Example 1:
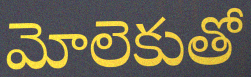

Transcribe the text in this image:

మోలెకుతో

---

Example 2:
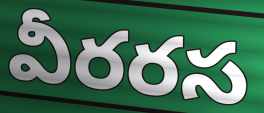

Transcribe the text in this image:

వీరరస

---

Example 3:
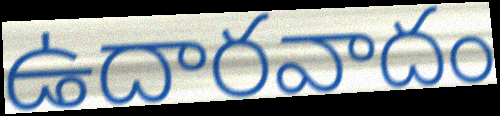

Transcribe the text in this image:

ఉదారవాదం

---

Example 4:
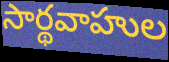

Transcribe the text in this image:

సార్థవాహుల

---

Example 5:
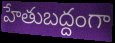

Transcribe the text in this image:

హేతుబద్దంగా